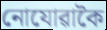
নোযোৱাকৈ